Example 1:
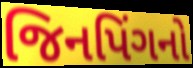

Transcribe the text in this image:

જિનપિંગનો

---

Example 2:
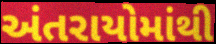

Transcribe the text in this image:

અંતરાયોમાંથી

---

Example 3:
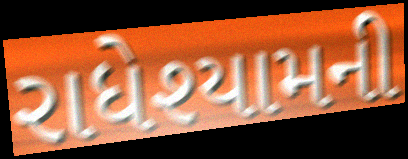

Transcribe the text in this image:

રાધેશ્યામની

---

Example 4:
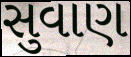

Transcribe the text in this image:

સુવાણ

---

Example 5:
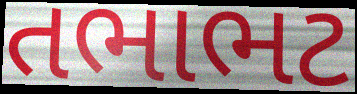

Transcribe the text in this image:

તભાભટ